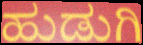
ಹುಡುಗಿ